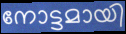
നോട്ടമായി